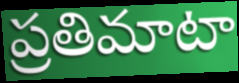
ప్రతిమాటా